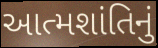
આત્મશાંતિનું